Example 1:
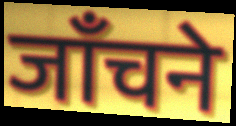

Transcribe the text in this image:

जाँचने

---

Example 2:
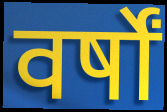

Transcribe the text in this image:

वर्षों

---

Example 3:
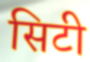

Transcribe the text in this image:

सिटी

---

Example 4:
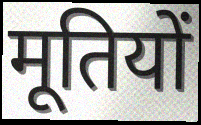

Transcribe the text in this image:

मूतियों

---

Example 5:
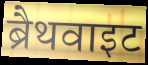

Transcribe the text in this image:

ब्रैथवाइट